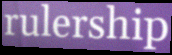
rulership